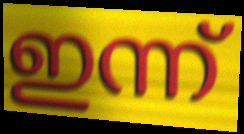
ഇന്ന്